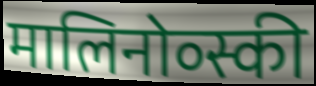
मालिनोव्स्की